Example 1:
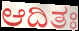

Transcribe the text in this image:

ಆದಿತಃ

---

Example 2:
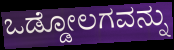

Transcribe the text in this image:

ಒಡ್ಡೋಲಗವನ್ನು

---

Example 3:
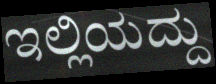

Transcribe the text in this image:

ಇಲ್ಲಿಯದ್ದು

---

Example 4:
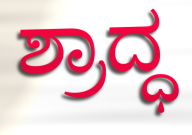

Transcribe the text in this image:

ಶ್ರಾದ್ಧ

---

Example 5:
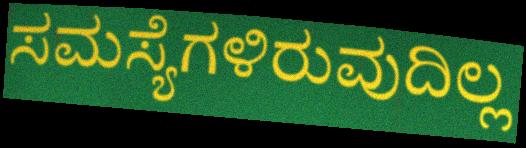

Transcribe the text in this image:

ಸಮಸ್ಯೆಗಳಿರುವುದಿಲ್ಲ